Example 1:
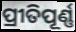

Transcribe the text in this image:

ପ୍ରୀତିପୂର୍ଣ୍ଣ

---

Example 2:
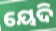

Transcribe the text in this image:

ୟେଦି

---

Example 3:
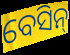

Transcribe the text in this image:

ବେସିନ୍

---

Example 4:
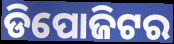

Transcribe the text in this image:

ଡିପୋଜିଟର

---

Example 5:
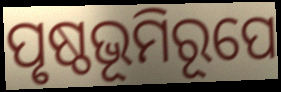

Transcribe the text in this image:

ପୃଷ୍ଠଭୂମିରୂପେ